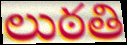
లుఠతి